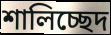
শালিচ্ছেদ